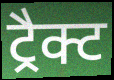
ट्रैक्ट